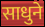
साधुने